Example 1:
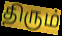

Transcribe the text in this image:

திரும்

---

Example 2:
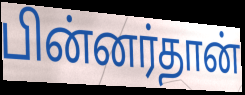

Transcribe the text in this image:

பின்னர்தான்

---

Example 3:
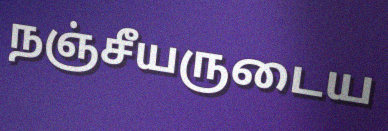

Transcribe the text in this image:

நஞ்சீயருடைய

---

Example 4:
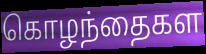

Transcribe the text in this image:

கொழந்தைகள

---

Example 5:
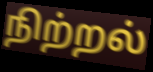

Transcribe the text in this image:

நிற்றல்